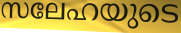
സലേഹയുടെ